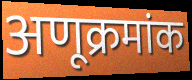
अणूक्रमांक